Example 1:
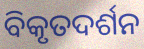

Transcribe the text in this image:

ବିକୃତଦର୍ଶନ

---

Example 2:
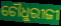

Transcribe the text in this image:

ଚୌଧୁରୀଜୀ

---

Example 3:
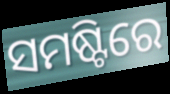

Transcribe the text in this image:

ସମଷ୍ଟିରେ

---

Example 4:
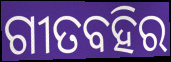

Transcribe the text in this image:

ଗୀତବହିର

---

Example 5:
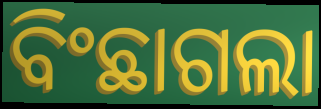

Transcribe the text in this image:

ବିଂଛାଗଲା